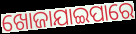
ଖୋଜାଯାଇପାରେ